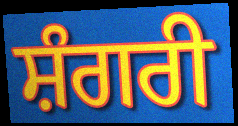
ਸ਼ੰਗਰੀ